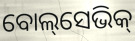
ବୋଲ୍‌ସେଭିକ୍